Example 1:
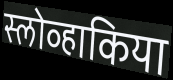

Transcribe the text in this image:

स्लोव्हाकिया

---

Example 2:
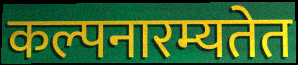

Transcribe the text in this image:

कल्पनारम्यतेत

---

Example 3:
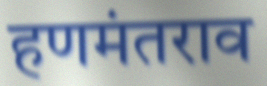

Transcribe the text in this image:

हणमंतराव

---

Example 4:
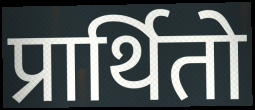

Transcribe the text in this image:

प्रार्थितो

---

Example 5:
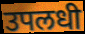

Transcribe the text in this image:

उपलधी